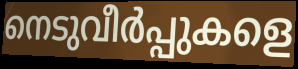
നെടുവീർപ്പുകളെ